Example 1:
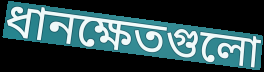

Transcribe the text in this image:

ধানক্ষেতগুলো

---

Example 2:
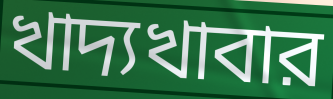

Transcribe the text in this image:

খাদ্যখাবার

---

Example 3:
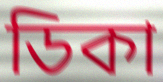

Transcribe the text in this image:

ডিকা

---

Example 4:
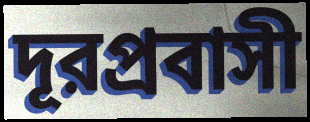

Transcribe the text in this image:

দূরপ্রবাসী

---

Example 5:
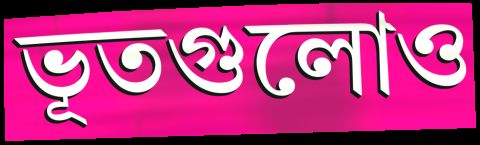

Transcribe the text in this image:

ভূতগুলোও